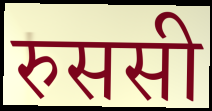
रुससी